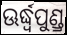
ଊର୍ଦ୍ଧ୍ୱପୁଣ୍ଡ୍ର